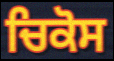
ਚਿਕੋਸ